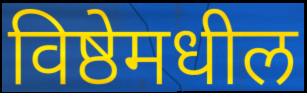
विष्ठेमधील